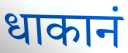
धाकानं